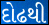
દોઢથી